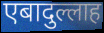
एबादुल्लाह